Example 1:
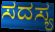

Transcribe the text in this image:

ಸದಸ್ಯ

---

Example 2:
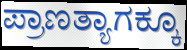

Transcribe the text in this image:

ಪ್ರಾಣತ್ಯಾಗಕ್ಕೂ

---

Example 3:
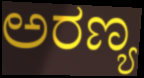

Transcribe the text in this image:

ಅರಣ್ಯ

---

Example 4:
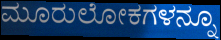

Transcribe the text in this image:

ಮೂರುಲೋಕಗಳನ್ನೂ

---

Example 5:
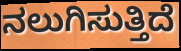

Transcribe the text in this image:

ನಲುಗಿಸುತ್ತಿದೆ